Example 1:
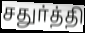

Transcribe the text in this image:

சதுர்த்தி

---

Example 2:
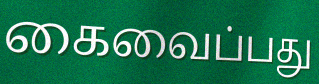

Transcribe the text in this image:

கைவைப்பது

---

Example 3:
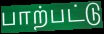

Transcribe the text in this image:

பாற்பட்டு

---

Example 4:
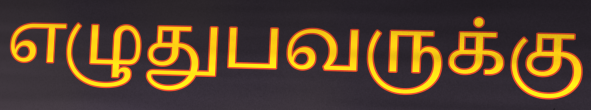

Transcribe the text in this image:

எழுதுபவருக்கு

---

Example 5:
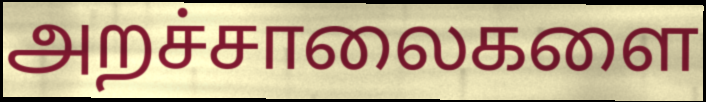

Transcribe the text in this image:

அறச்சாலைகளை